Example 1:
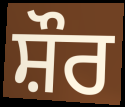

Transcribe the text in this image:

ਸ਼ੌਰ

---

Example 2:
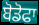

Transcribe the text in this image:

ਬੋਡੋਫਾ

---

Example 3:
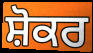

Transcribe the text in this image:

ਸ਼ੋਕਰ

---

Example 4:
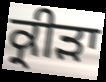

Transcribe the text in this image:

ਕ੍ਰੀੜਾ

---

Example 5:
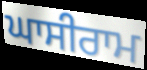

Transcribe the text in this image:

ਘਾਸੀਰਾਮ